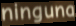
ninguna